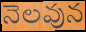
నెలవున